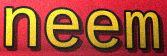
neem